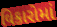
વિકારોમાં